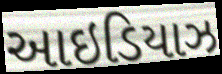
આઇડિયાઝ